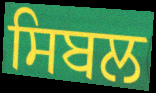
ਸਿਬਲ